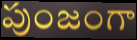
పుంజంగా